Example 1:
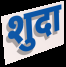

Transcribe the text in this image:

शुदा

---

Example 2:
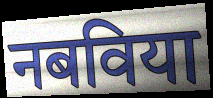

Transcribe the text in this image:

नबविया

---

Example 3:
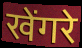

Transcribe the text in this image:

खेंगरे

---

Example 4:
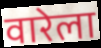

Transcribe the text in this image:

वारेला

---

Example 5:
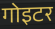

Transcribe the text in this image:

गोइटर